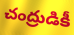
చంద్రుడికీ